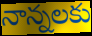
నాన్నలకు